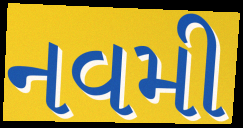
નવમી